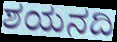
ಶಯನದಿ